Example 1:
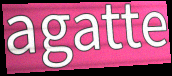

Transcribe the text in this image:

agatte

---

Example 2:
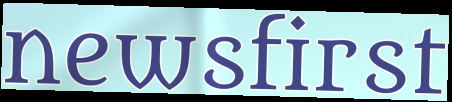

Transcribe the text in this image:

newsfirst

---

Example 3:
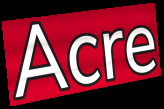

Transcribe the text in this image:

Acre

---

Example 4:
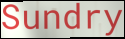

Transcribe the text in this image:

Sundry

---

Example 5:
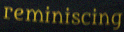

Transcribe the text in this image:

reminiscing